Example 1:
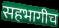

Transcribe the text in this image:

सहभागीच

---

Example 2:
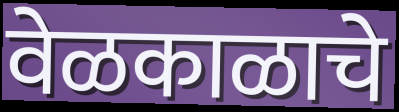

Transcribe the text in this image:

वेळकाळाचे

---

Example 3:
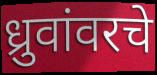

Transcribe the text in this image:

ध्रुवांवरचे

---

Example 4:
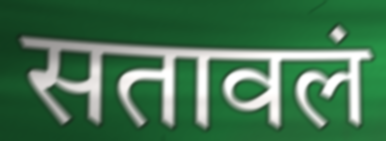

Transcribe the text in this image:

सतावलं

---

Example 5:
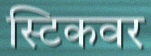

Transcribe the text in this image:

स्टिकवर